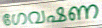
ഗേവഷണ